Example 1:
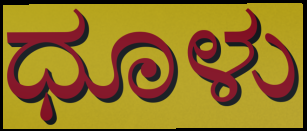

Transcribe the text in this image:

ಧೂಳು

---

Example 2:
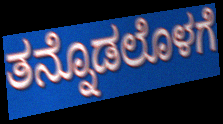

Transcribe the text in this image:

ತನ್ನೊಡಲೊಳಗೆ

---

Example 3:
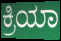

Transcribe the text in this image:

ಕ್ರಿಯಾ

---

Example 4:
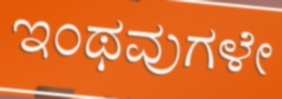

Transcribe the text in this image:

ಇಂಥವುಗಳೇ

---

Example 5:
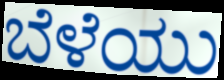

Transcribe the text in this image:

ಬೆಳೆಯು